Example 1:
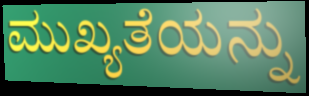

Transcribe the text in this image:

ಮುಖ್ಯತೆಯನ್ನು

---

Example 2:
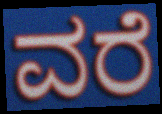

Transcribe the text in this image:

ವರೆ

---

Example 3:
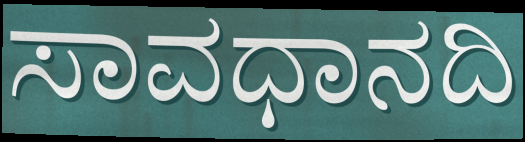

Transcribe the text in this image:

ಸಾವಧಾನದಿ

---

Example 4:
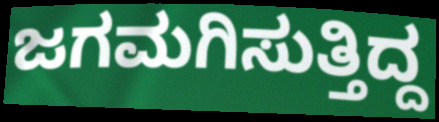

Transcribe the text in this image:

ಜಗಮಗಿಸುತ್ತಿದ್ದ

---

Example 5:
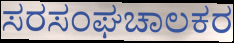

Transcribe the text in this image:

ಸರಸಂಘಚಾಲಕರ